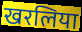
खरलिया